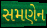
સમણેન